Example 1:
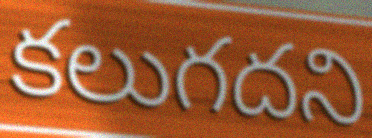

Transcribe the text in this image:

కలుగదని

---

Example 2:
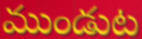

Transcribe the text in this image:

ముండుట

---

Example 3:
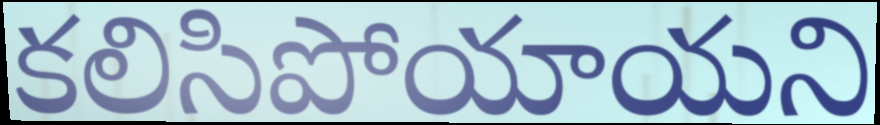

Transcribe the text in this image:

కలిసిపోయాయని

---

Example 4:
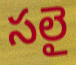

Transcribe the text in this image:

సలై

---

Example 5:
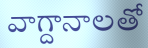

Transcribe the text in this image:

వాగ్దానాలతో